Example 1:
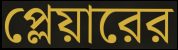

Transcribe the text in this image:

প্লেয়ারের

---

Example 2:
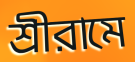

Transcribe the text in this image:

শ্রীরামে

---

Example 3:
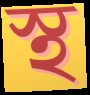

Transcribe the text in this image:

স্থ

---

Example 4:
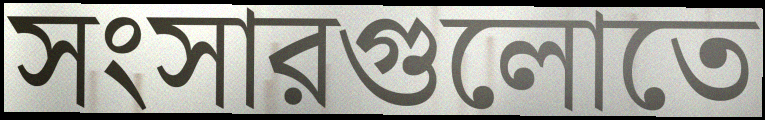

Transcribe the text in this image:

সংসারগুলোতে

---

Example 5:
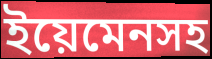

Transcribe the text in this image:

ইয়েমেনসহ